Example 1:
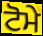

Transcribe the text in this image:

ਟੋਮੇ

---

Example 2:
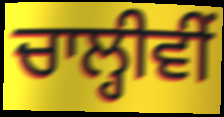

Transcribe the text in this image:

ਚਾਲ੍ਹੀਵੀਂ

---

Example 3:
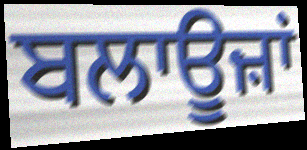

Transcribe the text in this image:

ਬਲਾਊਜ਼ਾਂ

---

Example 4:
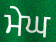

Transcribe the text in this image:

ਮੇਘ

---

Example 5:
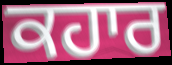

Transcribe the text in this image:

ਕਹਾਰ